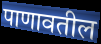
पाणावतील